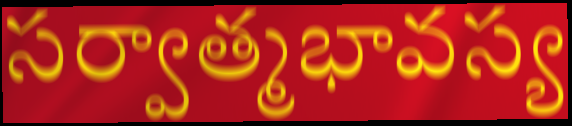
సర్వాత్మభావస్య